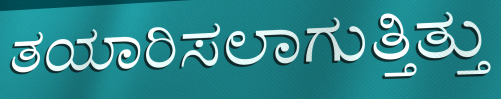
ತಯಾರಿಸಲಾಗುತ್ತಿತ್ತು